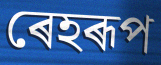
ৰেহৰূপ